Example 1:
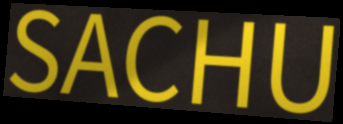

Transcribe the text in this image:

SACHU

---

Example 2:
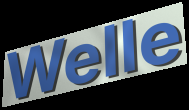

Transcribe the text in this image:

Welle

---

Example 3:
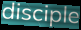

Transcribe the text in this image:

disciple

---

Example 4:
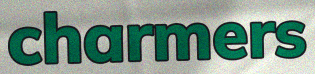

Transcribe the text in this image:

charmers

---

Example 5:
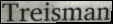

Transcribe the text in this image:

Treisman